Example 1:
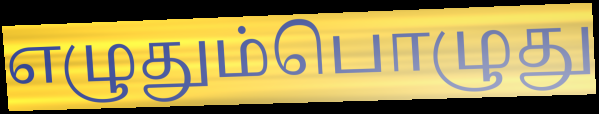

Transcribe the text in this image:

எழுதும்பொழுது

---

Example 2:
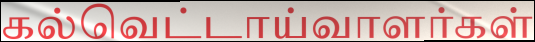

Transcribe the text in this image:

கல்வெட்டாய்வாளர்கள்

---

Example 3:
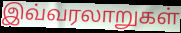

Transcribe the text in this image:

இவ்வரலாறுகள்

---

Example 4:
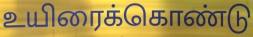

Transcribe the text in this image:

உயிரைக்கொண்டு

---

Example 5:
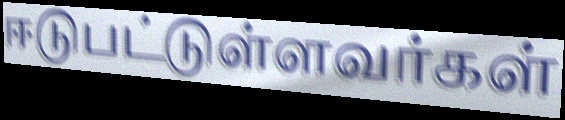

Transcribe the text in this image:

ஈடுபட்டுள்ளவர்கள்